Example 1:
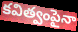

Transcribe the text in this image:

కవిత్వంపైనా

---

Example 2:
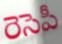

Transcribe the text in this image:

రెసెపీ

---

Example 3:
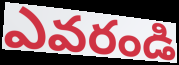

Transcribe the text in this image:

ఎవరండి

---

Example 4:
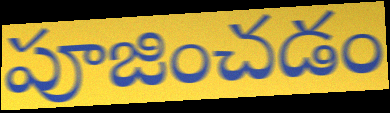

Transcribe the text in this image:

పూజించడం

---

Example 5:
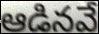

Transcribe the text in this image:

ఆడినవే